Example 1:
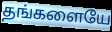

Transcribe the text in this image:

தங்களையே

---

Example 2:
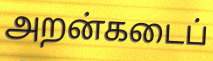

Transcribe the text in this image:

அறன்கடைப்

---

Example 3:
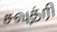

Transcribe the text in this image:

சவுத்ரி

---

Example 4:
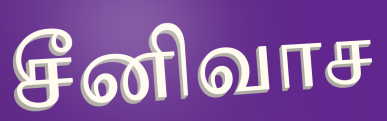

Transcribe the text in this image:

சீனிவாச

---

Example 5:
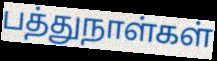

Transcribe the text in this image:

பத்துநாள்கள்